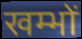
खम्भों